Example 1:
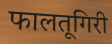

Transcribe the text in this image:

फालतूगिरी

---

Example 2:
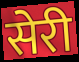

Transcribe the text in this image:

सेरी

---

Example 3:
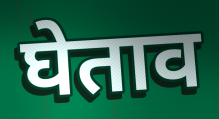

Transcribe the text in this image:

घेताव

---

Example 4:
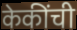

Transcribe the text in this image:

केकींची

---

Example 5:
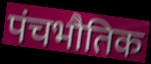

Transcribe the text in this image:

पंचभौतिक